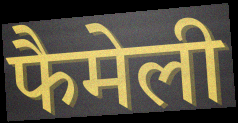
फैमेली